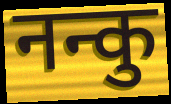
नन्कु